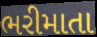
ભરીમાતા